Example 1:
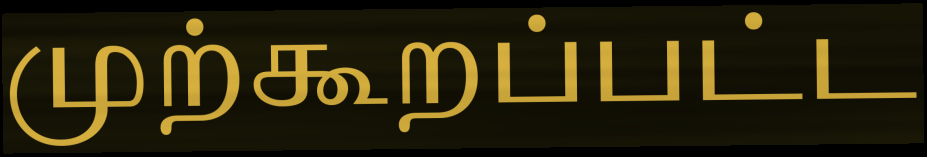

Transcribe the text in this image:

முற்கூறப்பட்ட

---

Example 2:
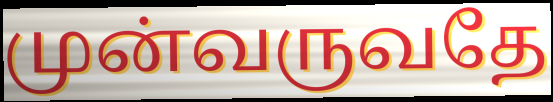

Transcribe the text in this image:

முன்வருவதே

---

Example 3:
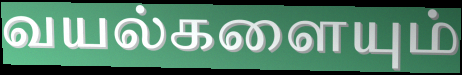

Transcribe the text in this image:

வயல்களையும்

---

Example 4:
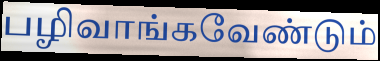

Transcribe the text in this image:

பழிவாங்கவேண்டும்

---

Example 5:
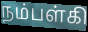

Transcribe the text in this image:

நம்பள்கி